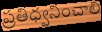
ప్రతిధ్వనించాలి